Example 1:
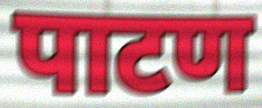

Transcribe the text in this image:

पाटण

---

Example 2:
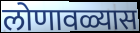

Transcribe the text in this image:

लोणावळ्यास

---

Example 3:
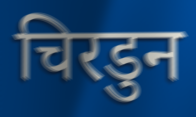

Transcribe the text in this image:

चिरडुन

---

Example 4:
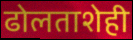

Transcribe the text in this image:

ढोलताशेही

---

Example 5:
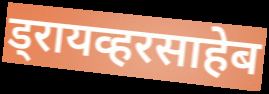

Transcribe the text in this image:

ड्रायव्हरसाहेब